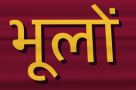
भूलों